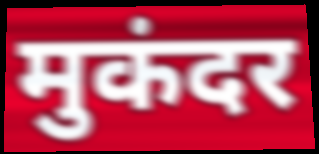
मुकंदर